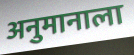
अनुमानाला